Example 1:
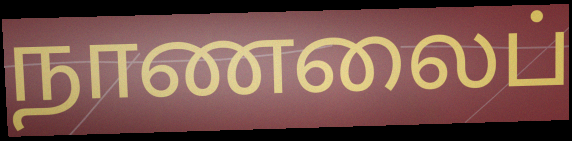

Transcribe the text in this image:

நாணலைப்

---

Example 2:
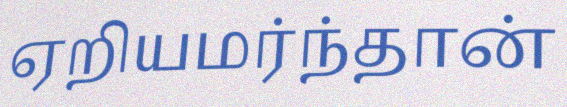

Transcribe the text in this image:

ஏறியமர்ந்தான்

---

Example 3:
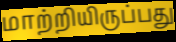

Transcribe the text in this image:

மாற்றியிருப்பது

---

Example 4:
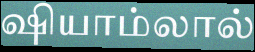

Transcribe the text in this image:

ஷியாம்லால்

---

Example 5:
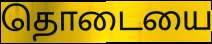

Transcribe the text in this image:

தொடையை